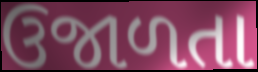
ઉજાળતા